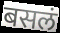
बसलं